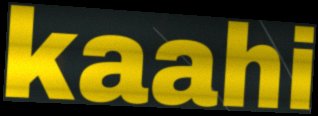
kaahi